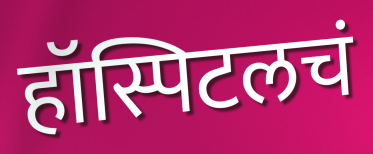
हॉस्पिटलचं